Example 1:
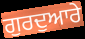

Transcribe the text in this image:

ਗੁਰਦੁਆਰੇ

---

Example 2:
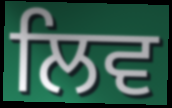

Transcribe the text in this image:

ਲਿਵ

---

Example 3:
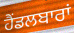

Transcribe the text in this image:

ਹੈਂਡਲਬਾਰਾਂ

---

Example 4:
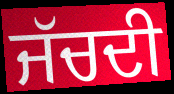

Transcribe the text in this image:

ਜੱਚਦੀ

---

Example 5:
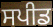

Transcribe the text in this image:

ਸਪੀਡ